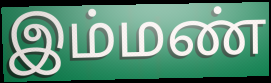
இம்மண்